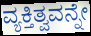
ವ್ಯಕ್ತಿತ್ವವನ್ನೇ